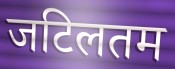
जटिलतम